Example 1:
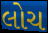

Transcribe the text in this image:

લોચ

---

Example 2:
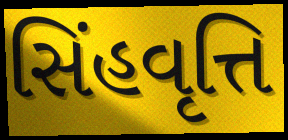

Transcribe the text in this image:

સિંહવૃત્તિ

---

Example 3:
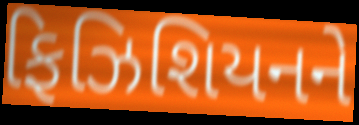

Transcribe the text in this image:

ફિઝિશિયનને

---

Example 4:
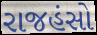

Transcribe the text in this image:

રાજહંસો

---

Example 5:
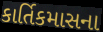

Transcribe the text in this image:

કાર્તિકમાસના